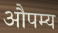
औपम्य